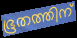
ഭൂതത്തിന്